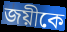
জয়ীকে